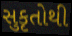
સુકૃતોથી